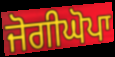
ਜੋਗੀਘੋਪਾ